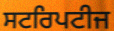
ਸਟਰਿਪਟੀਜ